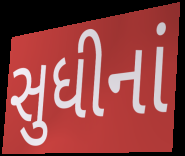
સુધીનાં